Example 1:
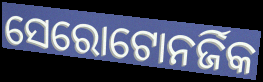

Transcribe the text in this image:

ସେରୋଟୋନର୍ଜିକ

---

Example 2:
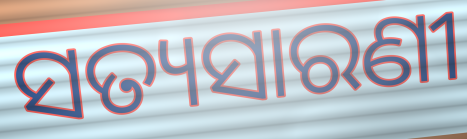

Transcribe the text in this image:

ସତ୍ୟସାରଣୀ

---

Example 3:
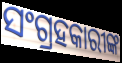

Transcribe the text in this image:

ସଂଗ୍ରହକାରୀଙ୍କ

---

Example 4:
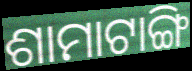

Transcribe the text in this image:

ଶାମାଟାଙ୍ଗି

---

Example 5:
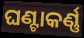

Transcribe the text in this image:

ଘଣ୍ଟାକର୍ଣ୍ଣ